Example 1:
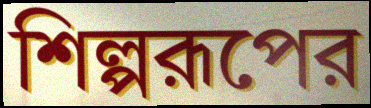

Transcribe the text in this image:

শিল্পরূপের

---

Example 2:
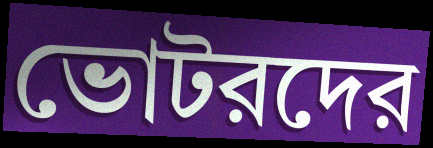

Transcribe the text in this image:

ভোটরদের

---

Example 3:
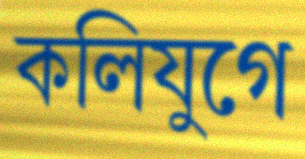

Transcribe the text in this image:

কলিযুগে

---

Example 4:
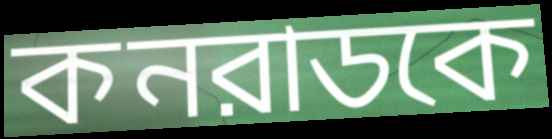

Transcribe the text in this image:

কনরাডকে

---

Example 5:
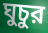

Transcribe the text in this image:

ঘুচুর